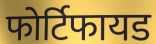
फोर्टिफायड